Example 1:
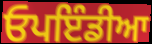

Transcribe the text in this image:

ਓਪਇੰਡੀਆ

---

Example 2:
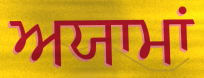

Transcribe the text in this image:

ਅਯਾਮਾਂ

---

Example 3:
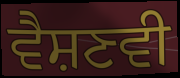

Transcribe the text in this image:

ਵੈਸ਼ਣਵੀ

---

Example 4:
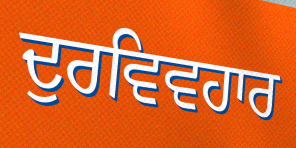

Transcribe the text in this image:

ਦੁਰਵਿਵਹਾਰ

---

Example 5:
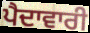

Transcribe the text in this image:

ਪੈਦਾਵਾਰੀ